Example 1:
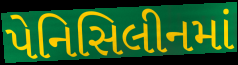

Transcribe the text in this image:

પેનિસિલીનમાં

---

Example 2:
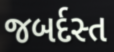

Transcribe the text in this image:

જબર્દસ્ત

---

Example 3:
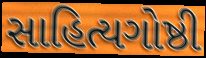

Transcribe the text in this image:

સાહિત્યગોષ્ઠી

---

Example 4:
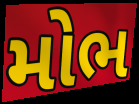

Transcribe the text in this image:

મોભ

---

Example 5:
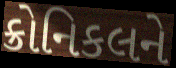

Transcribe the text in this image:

ક્રોનિકલને